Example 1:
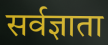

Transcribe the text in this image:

सर्वज्ञाता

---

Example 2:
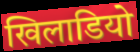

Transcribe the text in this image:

खिलाडियो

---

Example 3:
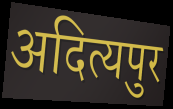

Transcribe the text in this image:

अदित्यपुर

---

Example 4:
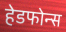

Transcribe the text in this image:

हेडफोन्स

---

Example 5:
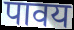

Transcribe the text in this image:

पावय